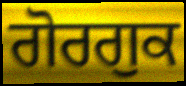
ਗੋਰਗੁਕ